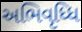
અભિવૃધ્ધિ